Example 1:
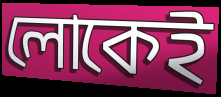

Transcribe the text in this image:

লোকেই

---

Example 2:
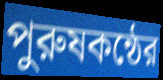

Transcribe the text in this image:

পুরুষকন্ঠের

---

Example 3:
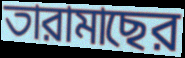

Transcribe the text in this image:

তারামাছের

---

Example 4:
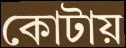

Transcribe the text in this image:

কোটায়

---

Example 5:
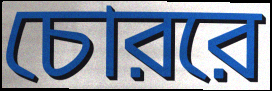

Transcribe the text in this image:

চোররে